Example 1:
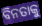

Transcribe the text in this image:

ବିନତାକୁ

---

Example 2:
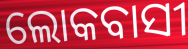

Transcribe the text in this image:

ଲୋକବାସୀ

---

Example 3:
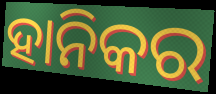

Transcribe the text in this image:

ହାନିକର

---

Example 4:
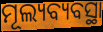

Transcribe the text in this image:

ମୂଲ୍ୟବ୍ୟବସ୍ଥା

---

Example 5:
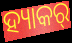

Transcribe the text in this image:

ହ୍ୟାକର୍